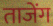
ताजेंग